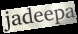
jadeepa